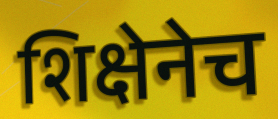
शिक्षेनेच